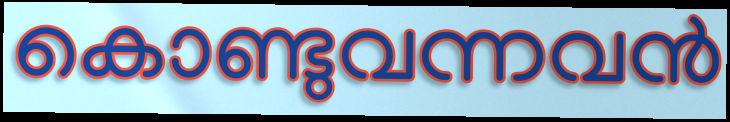
കൊണ്ടുവന്നവൻ